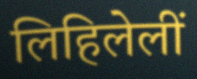
लिहिलेलीं